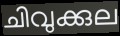
ചിവുക്കുല